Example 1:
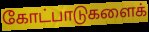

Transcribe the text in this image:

கோட்பாடுகளைக்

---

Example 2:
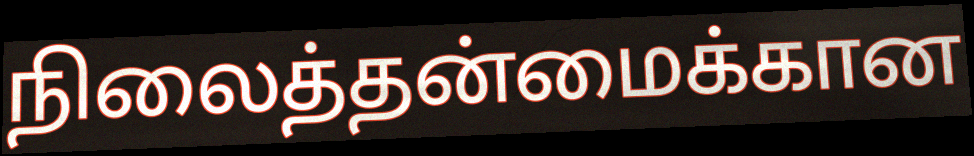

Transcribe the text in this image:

நிலைத்தன்மைக்கான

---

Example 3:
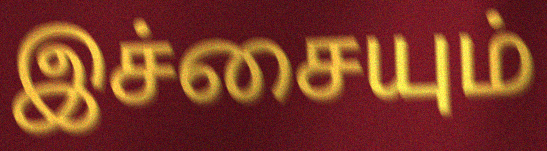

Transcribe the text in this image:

இச்சையும்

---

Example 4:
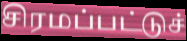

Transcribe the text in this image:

சிரமப்பட்டுச்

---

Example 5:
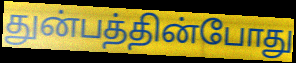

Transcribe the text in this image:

துன்பத்தின்போது